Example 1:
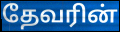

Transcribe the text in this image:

தேவரின்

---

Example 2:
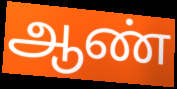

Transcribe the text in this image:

ஆண்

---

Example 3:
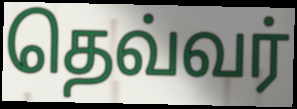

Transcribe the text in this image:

தெவ்வர்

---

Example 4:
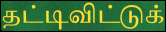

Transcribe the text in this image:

தட்டிவிட்டுக்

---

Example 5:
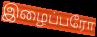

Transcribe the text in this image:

இழைப்பரோ